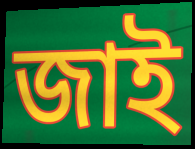
জাই